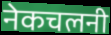
नेकचलनी